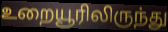
உறையூரிலிருந்து